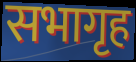
सभागृह